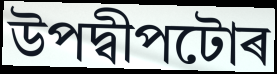
উপদ্বীপটোৰ